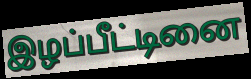
இழப்பீட்டினை